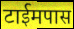
टाईमपास